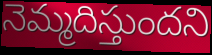
నెమ్మదిస్తుందని